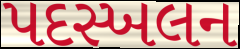
પદસ્ખલન